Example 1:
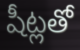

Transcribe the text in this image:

షీట్లతో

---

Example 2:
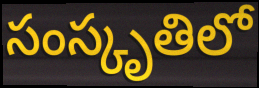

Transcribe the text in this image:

సంస్కృతిలో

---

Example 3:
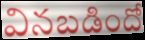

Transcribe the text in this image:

వినబడిందో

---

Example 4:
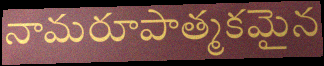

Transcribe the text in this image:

నామరూపాత్మకమైన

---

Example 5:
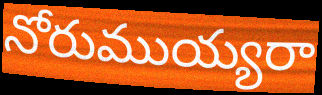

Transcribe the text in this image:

నోరుముయ్యరా